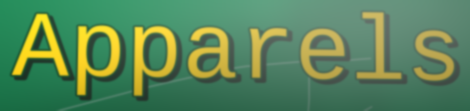
Apparels